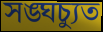
সঙ্ঘচ্যুত